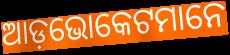
ଆଡ଼ଭୋକେଟମାନେ